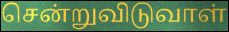
சென்றுவிடுவாள்